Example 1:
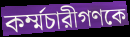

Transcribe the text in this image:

কর্ম্মচারীগণকে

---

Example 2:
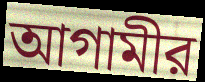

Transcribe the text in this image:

আগামীর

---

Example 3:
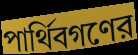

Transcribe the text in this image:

পার্থিবগণের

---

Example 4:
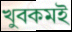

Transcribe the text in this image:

খুবকমই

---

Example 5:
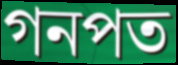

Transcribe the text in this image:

গনপত